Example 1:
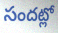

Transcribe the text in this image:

సందట్లో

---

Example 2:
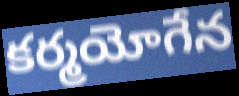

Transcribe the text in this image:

కర్మయోగేన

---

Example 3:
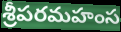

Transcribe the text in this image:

శ్రీపరమహంస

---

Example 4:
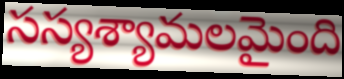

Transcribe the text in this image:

సస్యశ్యామలమైంది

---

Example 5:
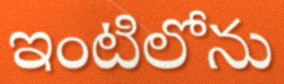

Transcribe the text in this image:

ఇంటిలోను